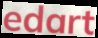
edart